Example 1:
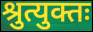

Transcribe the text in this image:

श्रुत्युक्तः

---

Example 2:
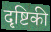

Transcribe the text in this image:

दृष्टिकी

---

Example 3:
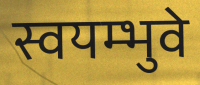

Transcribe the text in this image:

स्वयम्भुवे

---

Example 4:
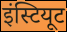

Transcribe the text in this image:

इंस्टियूट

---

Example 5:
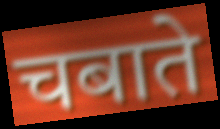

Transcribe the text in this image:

चबाते